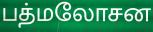
பத்மலோசன